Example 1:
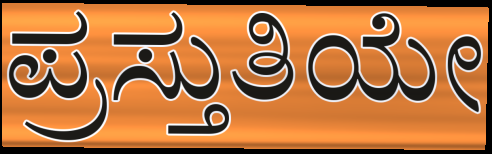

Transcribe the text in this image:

ಪ್ರಸ್ತುತಿಯೇ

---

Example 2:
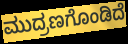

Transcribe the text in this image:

ಮುದ್ರಣಗೊಂಡಿದೆ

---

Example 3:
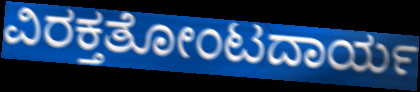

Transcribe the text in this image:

ವಿರಕ್ತತೋಂಟದಾರ್ಯ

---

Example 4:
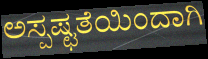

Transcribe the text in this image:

ಅಸ್ಪಷ್ಟತೆಯಿಂದಾಗಿ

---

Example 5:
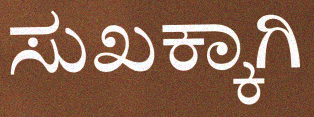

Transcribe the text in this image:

ಸುಖಕ್ಕಾಗಿ